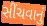
સીંચવાનું